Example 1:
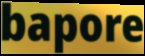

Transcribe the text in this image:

bapore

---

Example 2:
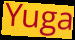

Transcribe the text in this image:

Yuga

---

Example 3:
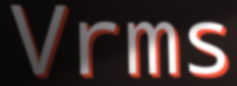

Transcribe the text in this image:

Vrms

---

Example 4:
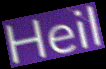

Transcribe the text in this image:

Heil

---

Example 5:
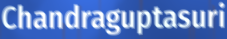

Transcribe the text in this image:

Chandraguptasuri